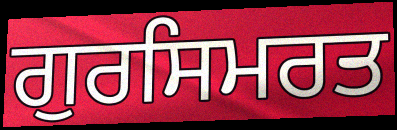
ਗੁਰਸਿਮਰਤ